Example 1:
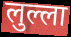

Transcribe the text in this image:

लुल्ला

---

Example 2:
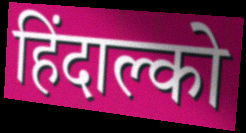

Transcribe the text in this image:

हिंदाल्को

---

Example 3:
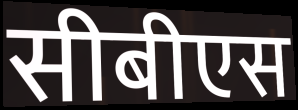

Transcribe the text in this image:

सीबीएस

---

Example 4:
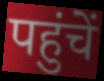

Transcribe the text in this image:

पहुंचें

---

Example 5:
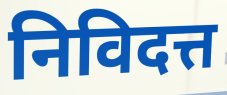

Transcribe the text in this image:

निविदत्त